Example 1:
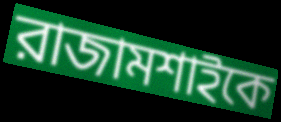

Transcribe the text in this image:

রাজামশাইকে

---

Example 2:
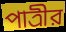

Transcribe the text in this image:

পাত্রীর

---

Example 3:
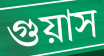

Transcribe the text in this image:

গুয়াস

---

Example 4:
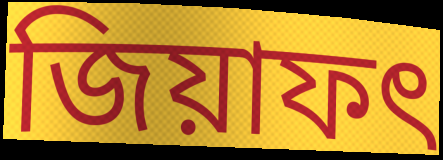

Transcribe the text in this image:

জিয়াফৎ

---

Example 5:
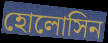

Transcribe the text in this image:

হোলোসিন